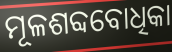
ମୂଳଶବ୍ଦବୋଧିକା